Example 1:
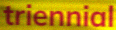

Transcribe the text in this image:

triennial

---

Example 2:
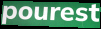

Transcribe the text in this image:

pourest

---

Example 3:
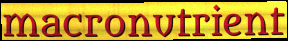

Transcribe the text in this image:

macronutrient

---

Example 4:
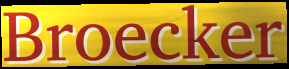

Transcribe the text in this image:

Broecker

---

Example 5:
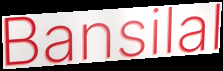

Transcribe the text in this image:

Bansilal